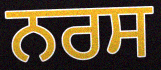
ਨਰਸ